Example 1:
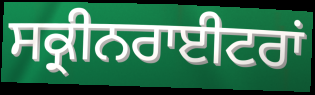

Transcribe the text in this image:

ਸਕ੍ਰੀਨਰਾਈਟਰਾਂ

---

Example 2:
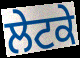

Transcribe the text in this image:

ਲੇਟਕੇ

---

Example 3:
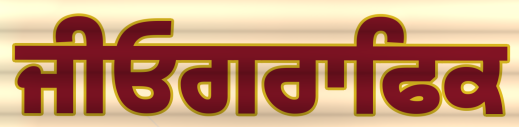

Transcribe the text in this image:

ਜੀਓਗਰਾਫਿਕ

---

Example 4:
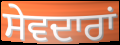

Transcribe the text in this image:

ਸੇਵਦਾਰਾਂ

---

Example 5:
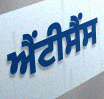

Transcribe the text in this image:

ਐਂਟੀਸੈਂਸ